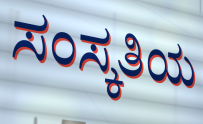
ಸಂಸ್ಕತಿಯ